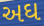
અઘ